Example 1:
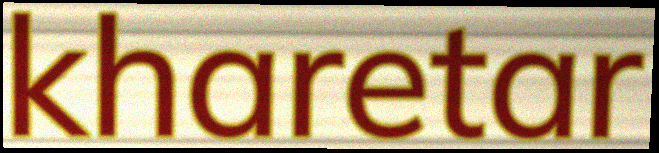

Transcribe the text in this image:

kharetar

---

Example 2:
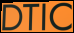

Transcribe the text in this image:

DTIC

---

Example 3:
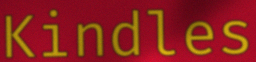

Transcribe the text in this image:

Kindles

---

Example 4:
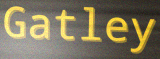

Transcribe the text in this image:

Gatley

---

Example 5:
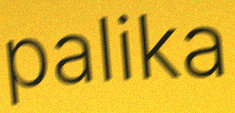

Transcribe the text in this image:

palika